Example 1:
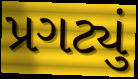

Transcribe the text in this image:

પ્રગટ્યું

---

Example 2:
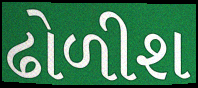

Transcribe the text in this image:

ઢોળીશ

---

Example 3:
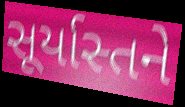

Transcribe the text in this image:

સૂર્યાસ્તને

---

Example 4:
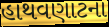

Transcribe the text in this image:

હાથવણાટના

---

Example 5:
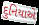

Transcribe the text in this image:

દુનિયાએ